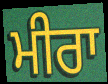
ਮੀਰਾ